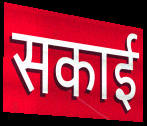
सकाई